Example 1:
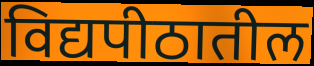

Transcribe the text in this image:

विद्यपीठातील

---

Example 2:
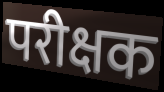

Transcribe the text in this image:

परीक्षक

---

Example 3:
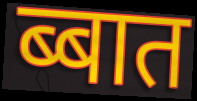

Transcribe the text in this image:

ब्बात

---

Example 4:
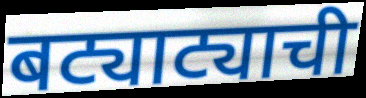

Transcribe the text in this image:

बट्याट्याची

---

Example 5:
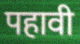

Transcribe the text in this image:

पहावी